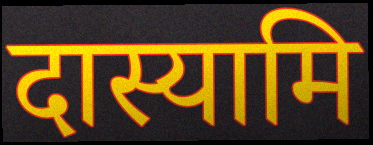
दास्यामि